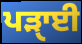
ਪੜਾੑਈ